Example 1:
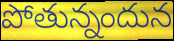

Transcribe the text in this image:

పోతున్నందున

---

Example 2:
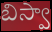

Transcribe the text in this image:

బిస్వా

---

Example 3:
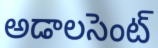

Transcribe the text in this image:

అడాలసెంట్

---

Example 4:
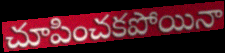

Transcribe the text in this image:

చూపించకపోయినా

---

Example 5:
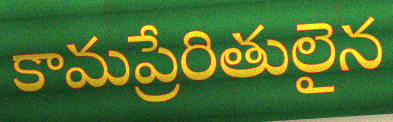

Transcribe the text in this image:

కామప్రేరితులైన